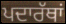
ਪਦਾਰੱਥਾਂ